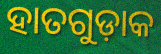
ହାତଗୁଡ଼ାକ